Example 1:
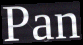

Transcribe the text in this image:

Pan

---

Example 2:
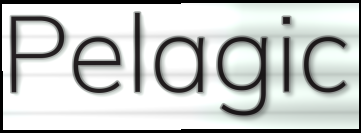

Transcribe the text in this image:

Pelagic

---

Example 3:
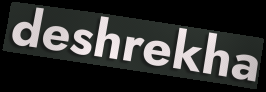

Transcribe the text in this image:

deshrekha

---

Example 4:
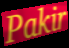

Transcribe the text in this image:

Pakir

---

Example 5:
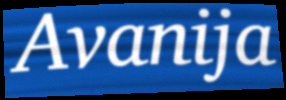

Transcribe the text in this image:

Avanija